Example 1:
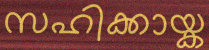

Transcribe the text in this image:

സഹിക്കായ്ക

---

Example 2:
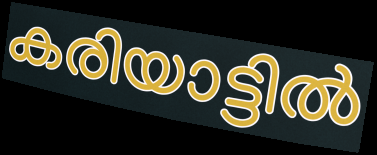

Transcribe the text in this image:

കരിയാട്ടിൽ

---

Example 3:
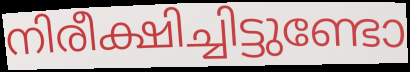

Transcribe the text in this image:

നിരീക്ഷിച്ചിട്ടുണ്ടോ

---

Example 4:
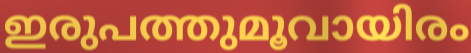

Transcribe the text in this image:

ഇരുപത്തുമൂവായിരം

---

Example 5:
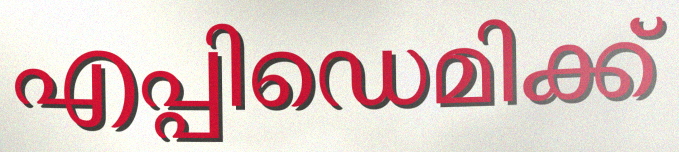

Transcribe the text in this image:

എപ്പിഡെമിക്ക്